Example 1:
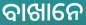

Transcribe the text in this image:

ବାଖାନେ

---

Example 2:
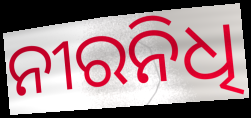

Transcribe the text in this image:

ନୀରନିଧି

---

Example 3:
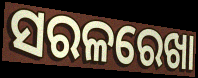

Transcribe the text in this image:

ସରଳରେଖା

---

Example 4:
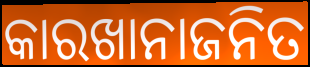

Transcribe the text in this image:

କାରଖାନାଜନିତ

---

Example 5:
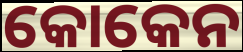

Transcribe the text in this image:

କୋକେନ